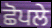
ਛੋਪਲੇ